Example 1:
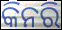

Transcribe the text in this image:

କିନରି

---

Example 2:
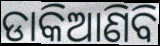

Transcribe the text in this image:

ଡାକିଆଣିବି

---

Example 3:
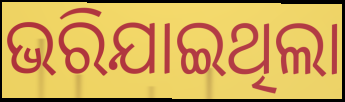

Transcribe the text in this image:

ଭରିଯାଇଥିଲା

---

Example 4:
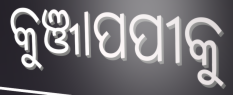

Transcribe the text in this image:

କୁଞ୍ଜାପପୀକୁ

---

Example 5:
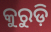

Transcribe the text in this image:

କୁରୁଡ଼ି